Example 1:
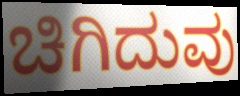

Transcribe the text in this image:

ಚಿಗಿದುವು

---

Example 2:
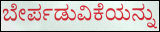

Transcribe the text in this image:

ಬೇರ್ಪಡುವಿಕೆಯನ್ನು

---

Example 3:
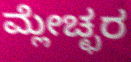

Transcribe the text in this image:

ಮ್ಲೇಚ್ಛರ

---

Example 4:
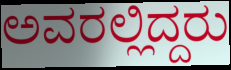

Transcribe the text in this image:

ಅವರಲ್ಲಿದ್ದರು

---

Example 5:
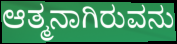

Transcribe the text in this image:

ಆತ್ಮನಾಗಿರುವನು